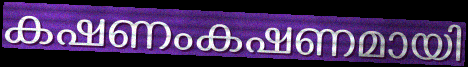
കഷണംകഷണമായി